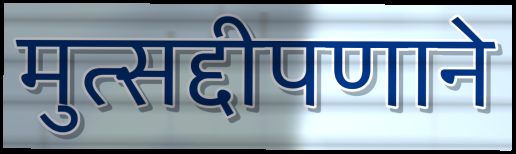
मुत्सद्दीपणाने